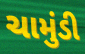
ચામુંડી